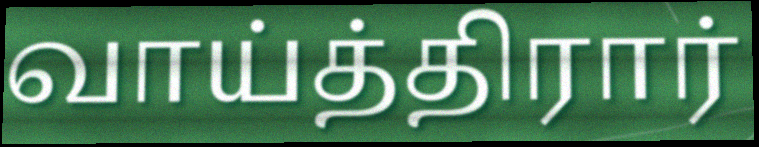
வாய்த்திரார்